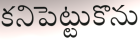
కనిపెట్టుకొను